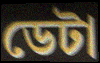
ডেটা